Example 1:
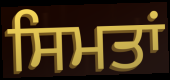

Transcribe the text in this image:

ਸਿਮਤਾਂ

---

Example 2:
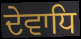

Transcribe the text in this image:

ਦੇਵਾਧਿ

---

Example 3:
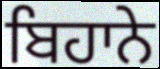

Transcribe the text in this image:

ਬਿਹਾਨੇ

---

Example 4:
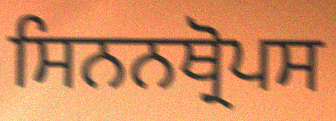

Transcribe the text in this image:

ਸਿਨਨਥ੍ਰੋਪਸ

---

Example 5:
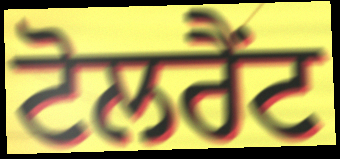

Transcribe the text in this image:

ਟੋਲਰੈਂਟ